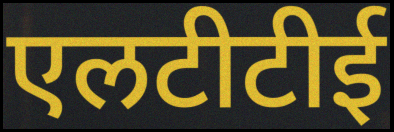
एलटीटीई